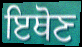
ਇਥੋਣ